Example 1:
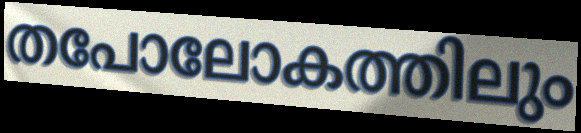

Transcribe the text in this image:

തപോലോകത്തിലും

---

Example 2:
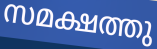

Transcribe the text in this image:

സമക്ഷത്തു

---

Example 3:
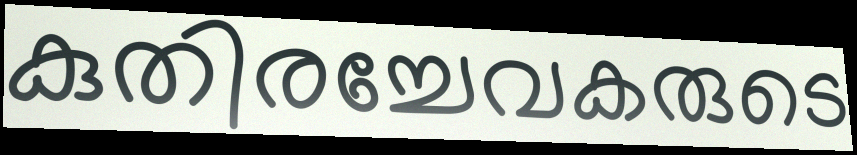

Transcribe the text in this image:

കുതിരച്ചേവകരുടെ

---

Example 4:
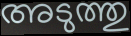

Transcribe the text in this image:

അടുത്തു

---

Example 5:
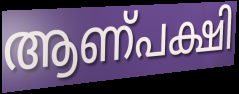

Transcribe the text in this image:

ആണ്പക്ഷി